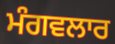
ਮੰਗਵਲਾਰ